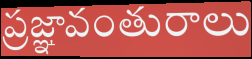
ప్రజ్ఞావంతురాలు